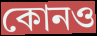
কোনও